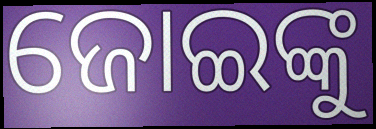
ଜୋଇଙ୍କୁ